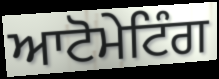
ਆਟੋਮੇਟਿੰਗ